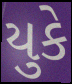
યુકે